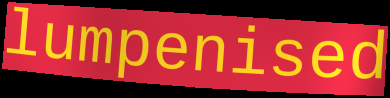
lumpenised